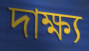
দাক্ষ্য